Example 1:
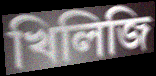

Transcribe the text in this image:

খিলিজি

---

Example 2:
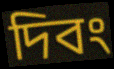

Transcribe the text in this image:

দিবং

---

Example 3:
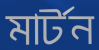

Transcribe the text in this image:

মার্টন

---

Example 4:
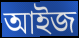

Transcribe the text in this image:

আইজ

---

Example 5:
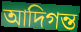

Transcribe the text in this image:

আদিগন্ত